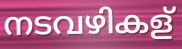
നടവഴികള്